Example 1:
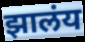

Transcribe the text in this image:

झालंय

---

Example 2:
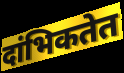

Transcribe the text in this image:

दांभिकतेत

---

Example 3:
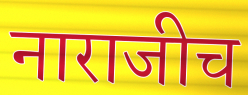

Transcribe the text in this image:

नाराजीच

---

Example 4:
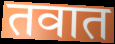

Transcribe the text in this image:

तवात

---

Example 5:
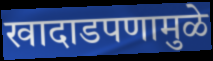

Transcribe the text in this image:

खादाडपणामुळे